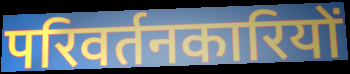
परिवर्तनकारियों